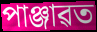
পাঞ্জাৱত